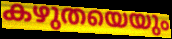
കഴുതയെയും